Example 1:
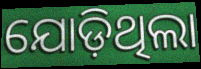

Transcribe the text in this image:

ଯୋଡ଼ିଥିଲା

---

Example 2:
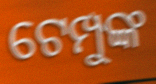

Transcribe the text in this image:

ଟେମ୍ପୁଙ୍କ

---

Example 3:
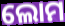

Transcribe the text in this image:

ଲୋମ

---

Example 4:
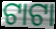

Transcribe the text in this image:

ଟାଟା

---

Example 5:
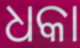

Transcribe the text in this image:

ଧକା